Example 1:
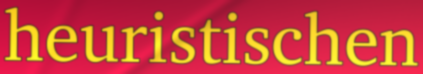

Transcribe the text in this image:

heuristischen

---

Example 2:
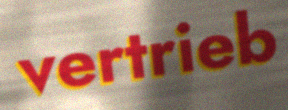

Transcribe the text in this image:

vertrieb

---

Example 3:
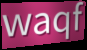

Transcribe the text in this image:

waqf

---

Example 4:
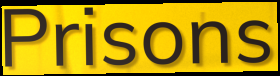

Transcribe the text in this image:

Prisons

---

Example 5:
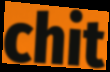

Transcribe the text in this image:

chit